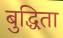
बुद्धिता